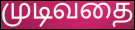
முடிவதை